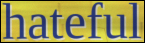
hateful